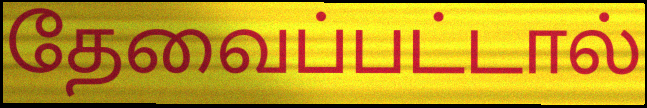
தேவைப்பட்டால்